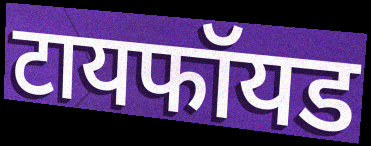
टायफॉयड